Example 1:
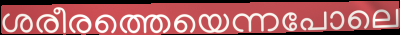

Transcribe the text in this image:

ശരീരത്തെയെന്നപോലെ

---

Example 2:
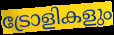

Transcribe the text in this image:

ട്രോളികളും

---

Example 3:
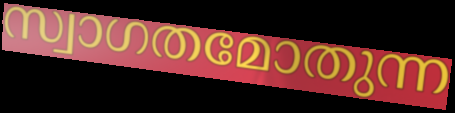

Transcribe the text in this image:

സ്വാഗതമോതുന്ന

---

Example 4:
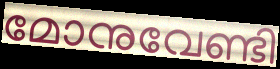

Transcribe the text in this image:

മോനുവേണ്ടി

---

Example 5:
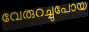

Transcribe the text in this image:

വേരുറച്ചുപോയ